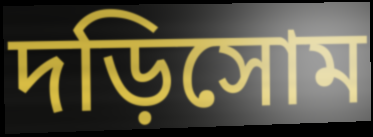
দড়িসোম